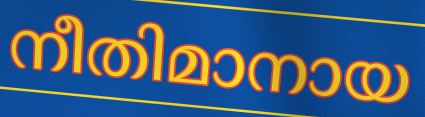
നീതിമാനായ